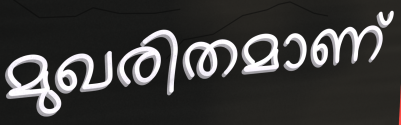
മുഖരിതമാണ്